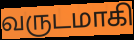
வருடமாகி